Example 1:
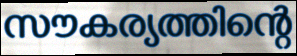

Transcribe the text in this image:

സൗകര്യത്തിന്റെ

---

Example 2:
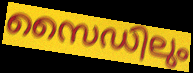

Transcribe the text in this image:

സൈഡിലും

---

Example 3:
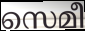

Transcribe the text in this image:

സെമീ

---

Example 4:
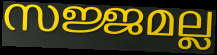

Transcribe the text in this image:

സജ്ജമല്ല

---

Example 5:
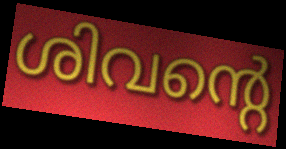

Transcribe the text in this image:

ശിവന്റെ